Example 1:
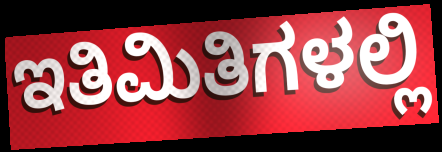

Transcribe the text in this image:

ಇತಿಮಿತಿಗಳಲ್ಲಿ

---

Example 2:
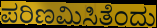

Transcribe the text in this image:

ಪರಿಣಮಿಸಿತೆಂದು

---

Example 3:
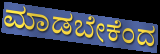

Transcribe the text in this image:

ಮಾಡಬೇಕೆಂದ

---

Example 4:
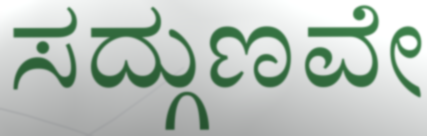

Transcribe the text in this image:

ಸದ್ಗುಣವೇ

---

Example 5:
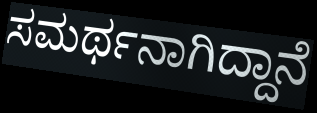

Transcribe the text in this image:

ಸಮರ್ಥನಾಗಿದ್ದಾನೆ